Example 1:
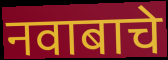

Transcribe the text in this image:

नवाबाचे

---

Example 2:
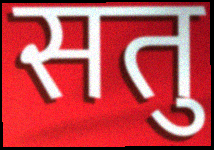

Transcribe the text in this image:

सतु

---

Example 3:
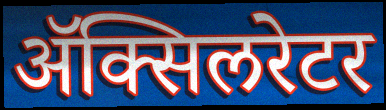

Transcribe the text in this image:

ॲक्सिलरेटर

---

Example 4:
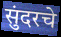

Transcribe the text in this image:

सुंदरचे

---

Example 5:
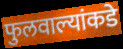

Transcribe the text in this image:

फुलवाल्यांकडे